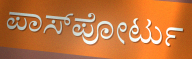
ಪಾಸ್‌ಪೋರ್ಟು